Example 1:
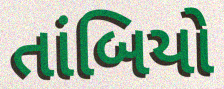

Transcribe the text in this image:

તાંબિયો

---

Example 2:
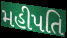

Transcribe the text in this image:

મહીપતિ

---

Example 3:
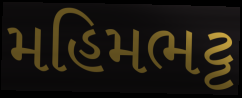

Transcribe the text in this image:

મહિમભટ્ટ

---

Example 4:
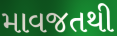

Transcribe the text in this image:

માવજતથી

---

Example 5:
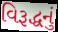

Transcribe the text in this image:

વિરૂદ્ધનું